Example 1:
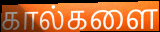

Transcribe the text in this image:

கால்களை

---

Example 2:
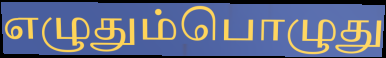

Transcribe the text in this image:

எழுதும்பொழுது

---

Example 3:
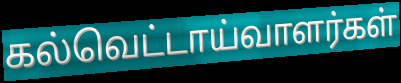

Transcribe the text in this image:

கல்வெட்டாய்வாளர்கள்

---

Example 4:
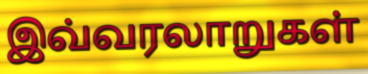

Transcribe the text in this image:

இவ்வரலாறுகள்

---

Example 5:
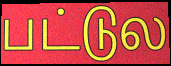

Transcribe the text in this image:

பட்டுல